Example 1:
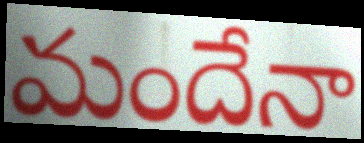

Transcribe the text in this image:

మందేనా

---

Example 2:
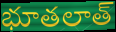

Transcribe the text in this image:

భూతలాత్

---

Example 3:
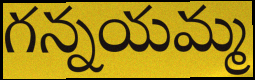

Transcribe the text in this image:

గన్నయమ్మ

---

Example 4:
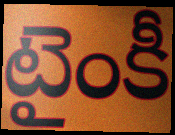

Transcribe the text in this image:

టైంకీ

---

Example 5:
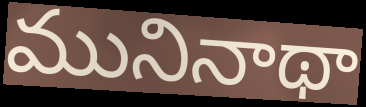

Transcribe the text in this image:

మునినాథా